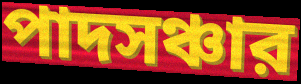
পাদসঞ্চার